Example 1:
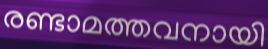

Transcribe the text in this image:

രണ്ടാമത്തവനായി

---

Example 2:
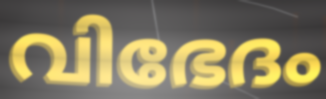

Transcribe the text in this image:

വിഭേദം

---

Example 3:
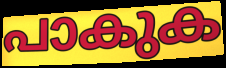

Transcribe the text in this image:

പാകുക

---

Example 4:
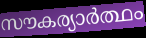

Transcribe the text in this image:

സൗകര്യാർത്ഥം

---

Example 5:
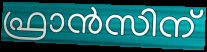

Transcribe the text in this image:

ഫ്രാൻസിന്